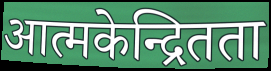
आत्मकेन्द्रितता